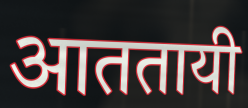
आततायी